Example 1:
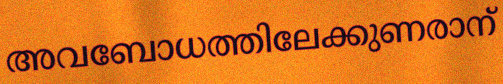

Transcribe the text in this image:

അവബോധത്തിലേക്കുണരാന്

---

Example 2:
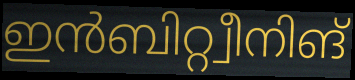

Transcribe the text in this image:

ഇൻബിറ്റ്വീനിങ്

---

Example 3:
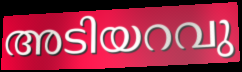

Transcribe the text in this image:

അടിയറവു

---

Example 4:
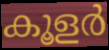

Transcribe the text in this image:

കൂളർ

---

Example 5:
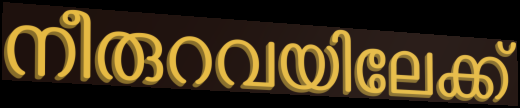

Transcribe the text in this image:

നീരുറവയിലേക്ക്